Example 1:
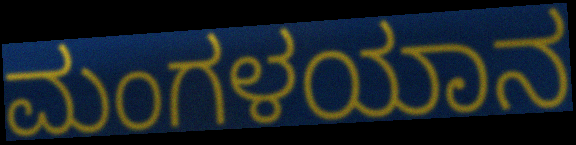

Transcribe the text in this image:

ಮಂಗಳಯಾನ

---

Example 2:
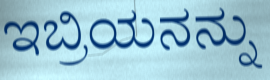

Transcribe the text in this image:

ಇಬ್ರಿಯನನ್ನು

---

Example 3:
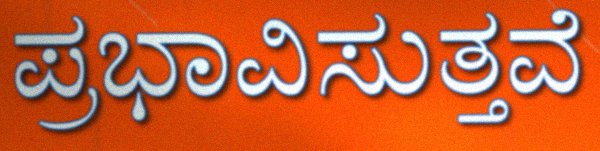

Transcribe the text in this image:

ಪ್ರಭಾವಿಸುತ್ತವೆ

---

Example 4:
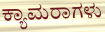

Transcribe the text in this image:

ಕ್ಯಾಮರಾಗಳು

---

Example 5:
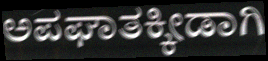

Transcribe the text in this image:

ಅಪಘಾತಕ್ಕೀಡಾಗಿ